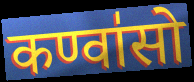
कण्वा॑सो